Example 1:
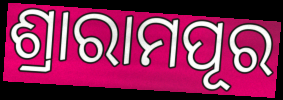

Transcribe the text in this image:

ଶ୍ରାରାମପୂର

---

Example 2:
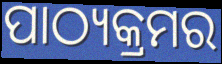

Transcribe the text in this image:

ପାଠ୍ୟକ୍ରମର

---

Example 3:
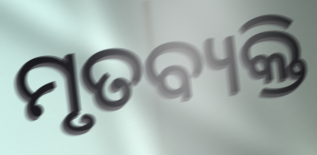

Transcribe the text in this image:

ମୃତବ୍ୟକ୍ତି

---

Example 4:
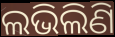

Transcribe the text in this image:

ଲଭିଲିଣି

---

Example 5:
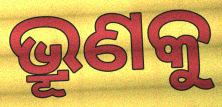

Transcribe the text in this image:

ଭ୍ରୂଣକୁ